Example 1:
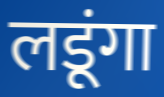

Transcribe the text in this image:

लडूंगा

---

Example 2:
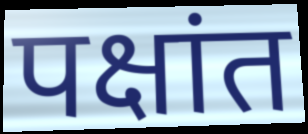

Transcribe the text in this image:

पक्षांत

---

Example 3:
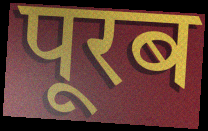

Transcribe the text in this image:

पूरब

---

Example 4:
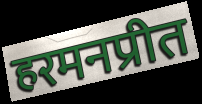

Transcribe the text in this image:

हरमनप्रीत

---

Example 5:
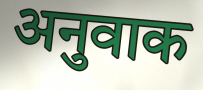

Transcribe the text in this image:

अनुवाक